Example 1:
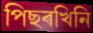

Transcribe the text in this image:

পিছৰখিনি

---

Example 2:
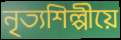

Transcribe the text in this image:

নৃত্যশিল্পীয়ে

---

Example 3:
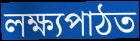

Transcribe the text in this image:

লক্ষ্যপাঠত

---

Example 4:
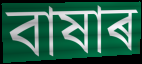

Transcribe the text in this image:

বাষাৰ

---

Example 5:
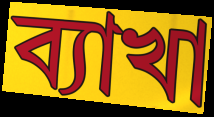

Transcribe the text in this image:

ব্যাখা